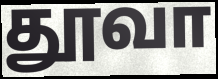
தூவா